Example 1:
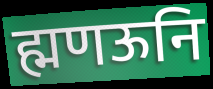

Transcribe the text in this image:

ह्मणऊनि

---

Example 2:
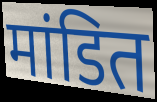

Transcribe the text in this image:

मांडित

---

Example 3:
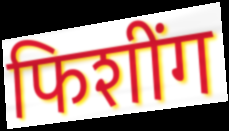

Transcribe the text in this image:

फिशींग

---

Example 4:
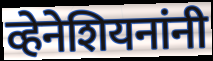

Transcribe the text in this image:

व्हेनेशियनांनी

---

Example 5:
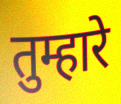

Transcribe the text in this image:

तुम्हारे